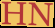
HN